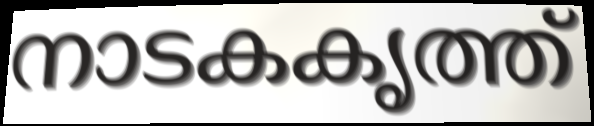
നാടകകൃത്ത്